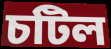
চটিল